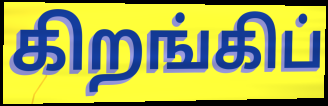
கிறங்கிப்